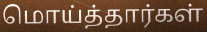
மொய்த்தார்கள்